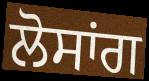
ਲੋਸਾਂਗ